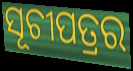
ସୂଚୀପତ୍ରର